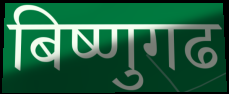
बिष्णुगढ